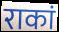
राकां